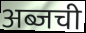
अब्जची